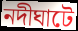
নদীঘাটে